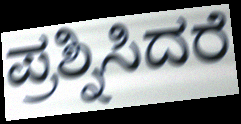
ಪ್ರಶ್ನಿಸಿದರೆ